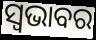
ସ୍ୱଭାବର